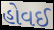
હોવઈ